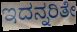
ಇದನ್ನರಿತೇ